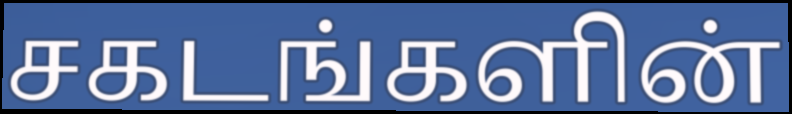
சகடங்களின்